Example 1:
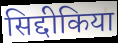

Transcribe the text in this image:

सिद्दीकिया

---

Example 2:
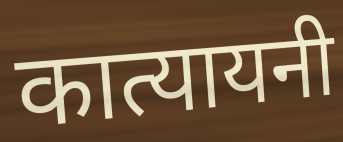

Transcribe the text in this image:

कात्यायनी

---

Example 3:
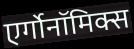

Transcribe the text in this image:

एर्गोनॉमिक्स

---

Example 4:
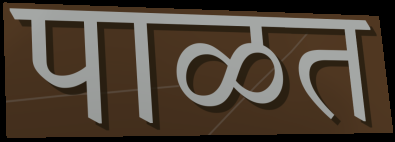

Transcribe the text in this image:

पाळत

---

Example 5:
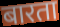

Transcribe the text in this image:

बारता